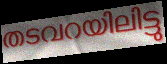
തടവറയിലിട്ടു